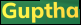
Guptha